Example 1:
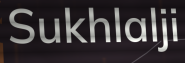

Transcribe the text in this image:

Sukhlalji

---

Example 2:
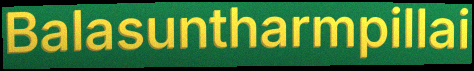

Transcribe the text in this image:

Balasuntharmpillai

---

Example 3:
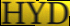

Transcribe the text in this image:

HYD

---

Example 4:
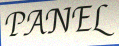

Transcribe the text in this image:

PANEL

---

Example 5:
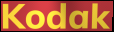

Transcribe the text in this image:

Kodak